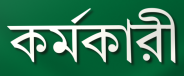
কর্মকারী